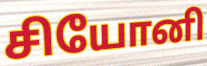
சியோனி